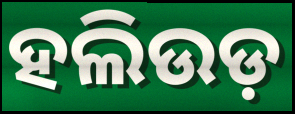
ହଲିଉଡ଼